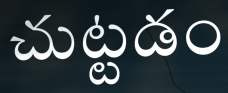
చుట్టడం